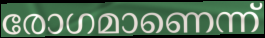
രോഗമാണെന്ന്